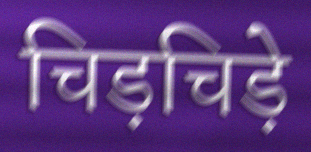
चिड़चिड़े